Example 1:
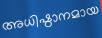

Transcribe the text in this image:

അധിഷ്ഠാനമായ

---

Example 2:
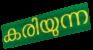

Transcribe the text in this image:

കരിയുന്ന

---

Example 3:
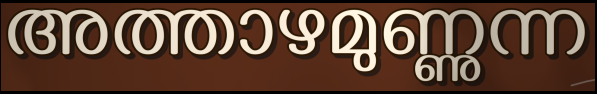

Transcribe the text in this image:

അത്താഴമുണ്ണുന്ന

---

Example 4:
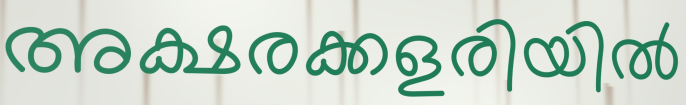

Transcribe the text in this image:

അക്ഷരക്കളരിയിൽ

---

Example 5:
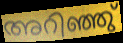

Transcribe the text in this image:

അറിഞ്ഞു്